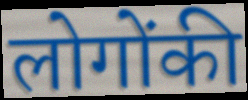
लोगोंकी